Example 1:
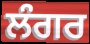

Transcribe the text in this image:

ਲੰਗਰ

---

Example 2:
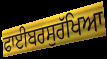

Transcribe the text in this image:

ਫਾਈਬਰਸੁਰੱਖਿਆ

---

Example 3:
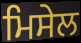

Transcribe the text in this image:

ਮਿਸੇਲ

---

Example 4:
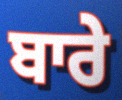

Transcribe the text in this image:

ਬਾਰੇ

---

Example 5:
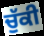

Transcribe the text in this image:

ਚੁੱਕੀ